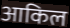
आकिल